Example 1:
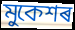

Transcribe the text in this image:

মুকেশৰ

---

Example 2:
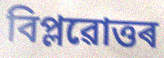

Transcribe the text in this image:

বিপ্লৱোত্তৰ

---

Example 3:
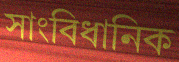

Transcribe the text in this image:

সাংবিধানিক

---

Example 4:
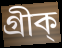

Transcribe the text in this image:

গ্ৰীক্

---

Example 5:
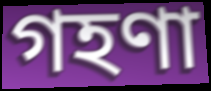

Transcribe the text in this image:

গহণা